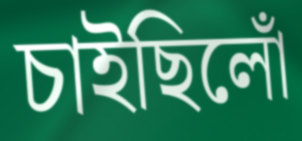
চাইছিলোঁ